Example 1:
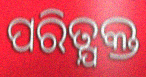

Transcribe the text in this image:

ପରିତ୍ଯକ୍ତ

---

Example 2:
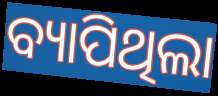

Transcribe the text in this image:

ବ୍ୟାପିଥିଲା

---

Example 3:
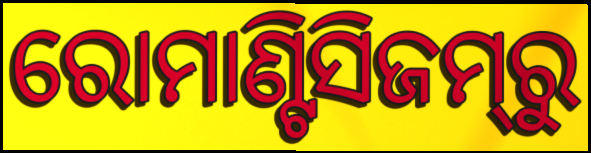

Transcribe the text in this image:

ରୋମାଣ୍ଟିସିଜମ୍‌ରୁ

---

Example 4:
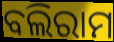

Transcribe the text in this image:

ବଲିରାମ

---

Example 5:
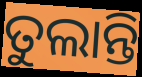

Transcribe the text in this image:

ତୁଲାନ୍ତି